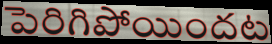
పెరిగిపోయిందట